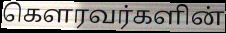
கௌரவர்களின்